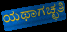
ಯಥಾಗಚ್ಛತಿ